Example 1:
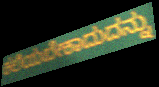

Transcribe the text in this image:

ಕಲಿಯಬೇಕಾದುದನ್ನು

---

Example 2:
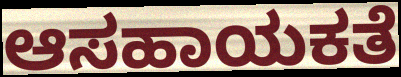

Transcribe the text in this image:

ಆಸಹಾಯಕತೆ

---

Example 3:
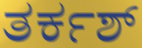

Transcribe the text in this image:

ತರ್ಕಶ್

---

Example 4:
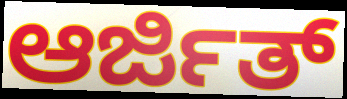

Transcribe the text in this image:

ಆರ್ಜಿತ್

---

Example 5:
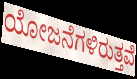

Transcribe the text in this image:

ಯೋಜನೆಗಳಿರುತ್ತವೆ